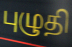
புழுதி